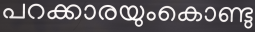
പറക്കാരയുംകൊണ്ടു